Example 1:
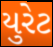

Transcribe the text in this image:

યુરેટ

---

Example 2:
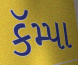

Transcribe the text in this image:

કૅમ્પા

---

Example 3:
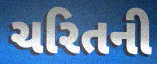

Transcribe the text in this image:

ચરિતની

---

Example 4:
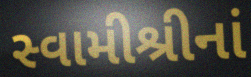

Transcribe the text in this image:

સ્વામીશ્રીનાં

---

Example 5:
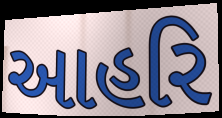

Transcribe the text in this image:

આહરિ